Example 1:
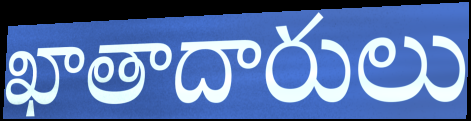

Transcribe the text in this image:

ఖాతాదారులు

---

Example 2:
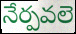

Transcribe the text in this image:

నేర్పవలె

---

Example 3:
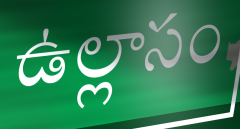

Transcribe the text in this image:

ఉల్లాసం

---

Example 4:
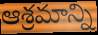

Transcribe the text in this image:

ఆశ్రమాన్ని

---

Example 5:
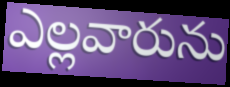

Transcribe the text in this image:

ఎల్లవారును